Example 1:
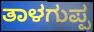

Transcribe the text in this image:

ತಾಳಗುಪ್ಪ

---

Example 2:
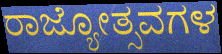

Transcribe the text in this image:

ರಾಜ್ಯೋತ್ಸವಗಳ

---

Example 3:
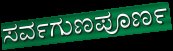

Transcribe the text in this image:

ಸರ್ವಗುಣಪೂರ್ಣ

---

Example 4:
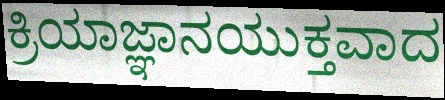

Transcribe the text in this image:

ಕ್ರಿಯಾಜ್ಞಾನಯುಕ್ತವಾದ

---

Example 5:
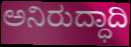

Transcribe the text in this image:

ಅನಿರುದ್ಧಾದಿ